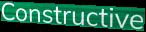
Constructive